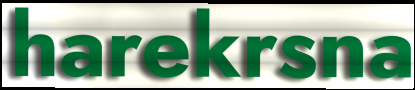
harekrsna